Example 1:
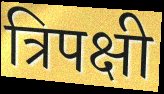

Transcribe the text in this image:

त्रिपक्षी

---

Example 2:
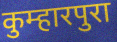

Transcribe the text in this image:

कुम्हारपुरा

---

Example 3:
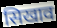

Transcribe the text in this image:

सिखाव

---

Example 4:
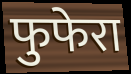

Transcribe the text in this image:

फुफेरा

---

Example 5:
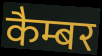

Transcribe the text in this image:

कैम्बर